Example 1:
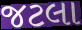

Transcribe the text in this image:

જટલા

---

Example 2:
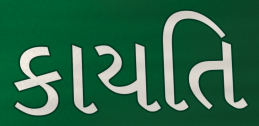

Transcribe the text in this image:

કાયતિ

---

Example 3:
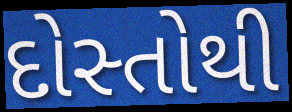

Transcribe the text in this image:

દોસ્તોથી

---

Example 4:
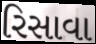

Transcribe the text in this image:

રિસાવા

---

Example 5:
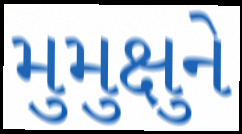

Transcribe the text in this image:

મુમુક્ષુને